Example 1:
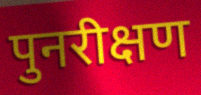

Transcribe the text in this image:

पुनरीक्षण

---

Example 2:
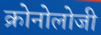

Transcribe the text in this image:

क्रोनोलोजी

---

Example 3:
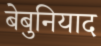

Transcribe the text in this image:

बेबुनियाद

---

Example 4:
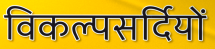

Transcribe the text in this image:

विकल्पसर्दियों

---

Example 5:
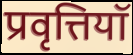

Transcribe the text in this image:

प्रवृत्तियॉ